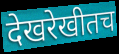
देखरेखीतच